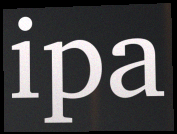
ipa